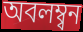
অবলম্ব্বন